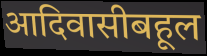
आदिवासीबहूल